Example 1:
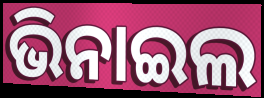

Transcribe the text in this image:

ଭିନାଇଲ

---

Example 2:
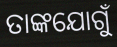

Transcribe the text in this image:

ତାଙ୍କଯୋଗୁଁ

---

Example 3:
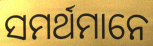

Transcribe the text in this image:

ସମର୍ଥମାନେ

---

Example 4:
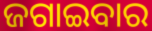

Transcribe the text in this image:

ଜଗାଇବାର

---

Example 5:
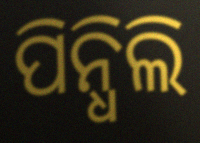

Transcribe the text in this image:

ପିନ୍ଧିଲି